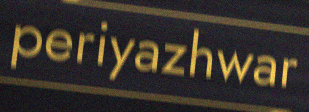
periyazhwar